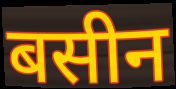
बसीन